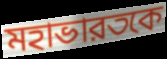
মহাভারতকে